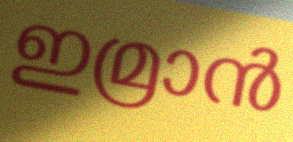
ഇമ്രാൻ